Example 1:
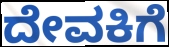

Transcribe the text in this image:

ದೇವಕಿಗೆ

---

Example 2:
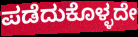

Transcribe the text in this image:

ಪಡೆದುಕೊಳ್ಳದೇ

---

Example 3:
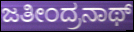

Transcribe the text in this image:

ಜತೀಂದ್ರನಾಥ್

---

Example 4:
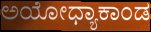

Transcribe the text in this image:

ಅಯೋಧ್ಯಾಕಾಂಡ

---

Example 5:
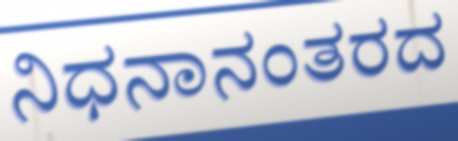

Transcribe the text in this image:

ನಿಧನಾನಂತರದ